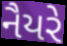
નૈયરે